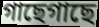
গাছেগাছে